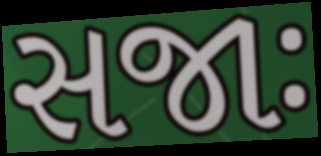
સજાઃ